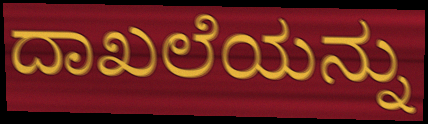
ದಾಖಲೆಯನ್ನು